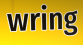
wring